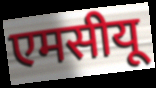
एमसीयू